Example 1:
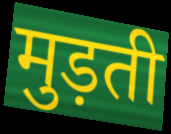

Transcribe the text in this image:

मुड़ती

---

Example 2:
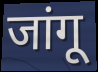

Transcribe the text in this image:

जांगू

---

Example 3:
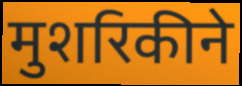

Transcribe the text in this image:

मुशरिकीने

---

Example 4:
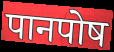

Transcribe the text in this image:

पानपोष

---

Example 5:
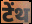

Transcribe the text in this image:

टेंथ